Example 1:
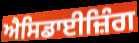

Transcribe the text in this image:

ਐਸਿਡਾਈਜ਼ਿੰਗ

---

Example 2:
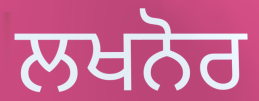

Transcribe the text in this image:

ਲਖਨੋਰ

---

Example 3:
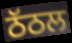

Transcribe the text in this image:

ਠੱਠਲ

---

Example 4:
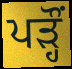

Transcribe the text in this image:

ਪੜ੍ਹੌਂ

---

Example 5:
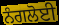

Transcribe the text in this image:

ਨੰਗਲੋਈ